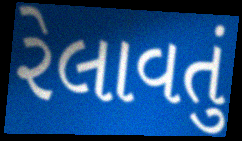
રેલાવતું